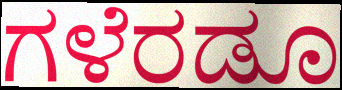
ಗಳೆರಡೂ